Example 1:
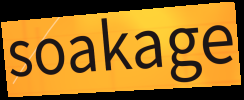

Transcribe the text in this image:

soakage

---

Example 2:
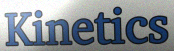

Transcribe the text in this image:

Kinetics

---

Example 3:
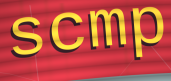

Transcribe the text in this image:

scmp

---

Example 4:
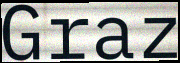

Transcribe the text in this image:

Graz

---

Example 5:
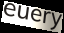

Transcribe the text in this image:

euery